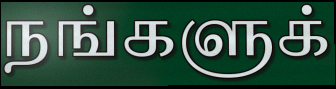
நங்களுக்